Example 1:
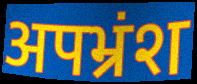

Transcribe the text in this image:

अपभ्रंश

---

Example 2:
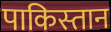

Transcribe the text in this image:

पाकिस्‍तान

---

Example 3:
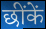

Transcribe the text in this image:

छींकें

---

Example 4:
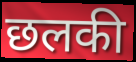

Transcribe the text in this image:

छलकी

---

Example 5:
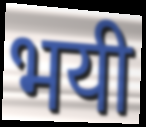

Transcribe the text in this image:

भयी